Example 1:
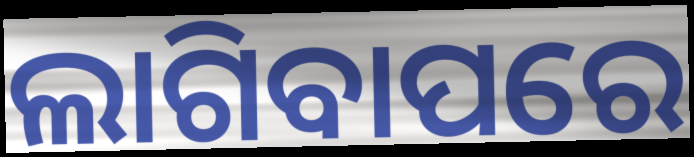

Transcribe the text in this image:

ଲାଗିବାପରେ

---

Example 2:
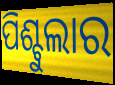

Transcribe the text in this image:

ପିଶ୍ଚୁଲାର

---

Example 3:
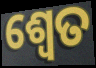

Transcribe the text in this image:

ଶ୍ଵେତ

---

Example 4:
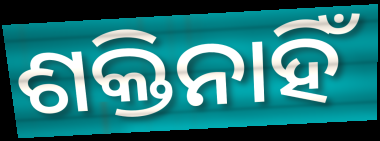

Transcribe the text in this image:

ଶକ୍ତିନାହିଁ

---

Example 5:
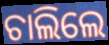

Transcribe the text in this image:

ଚାଲିଲେ